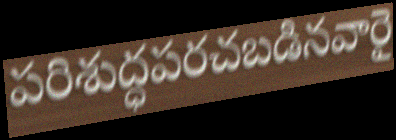
పరిశుద్ధపరచబడినవారై